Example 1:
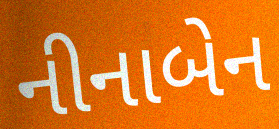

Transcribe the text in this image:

નીનાબેન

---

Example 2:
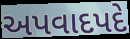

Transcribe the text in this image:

અપવાદપદે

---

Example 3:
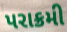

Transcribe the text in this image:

પરાક્રમી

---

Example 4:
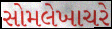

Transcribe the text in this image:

સોમલેખાચરે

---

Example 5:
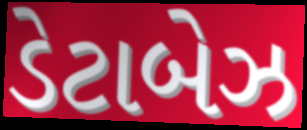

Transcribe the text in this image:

ડેટાબેઝ